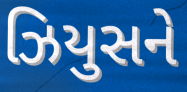
ઝિયુસને